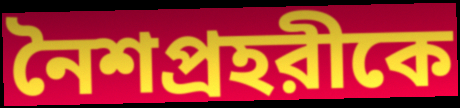
নৈশপ্রহরীকে